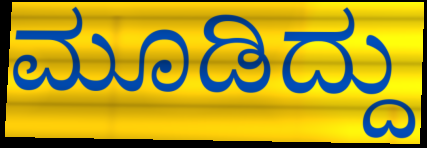
ಮೂಡಿದ್ದು